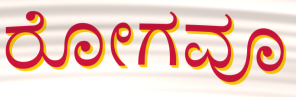
ರೋಗವೂ